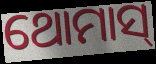
ଥୋମାସ୍